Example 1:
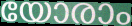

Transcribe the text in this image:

യോരാം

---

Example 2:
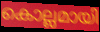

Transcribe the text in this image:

കൊല്ലമായി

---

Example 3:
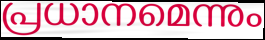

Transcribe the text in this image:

പ്രധാനമെന്നും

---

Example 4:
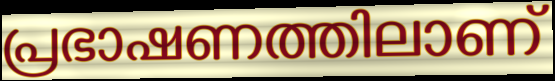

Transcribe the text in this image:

പ്രഭാഷണത്തിലാണ്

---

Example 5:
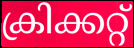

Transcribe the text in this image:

ക്രിക്കറ്റ്